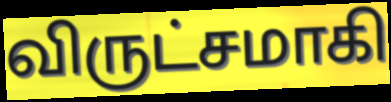
விருட்சமாகி